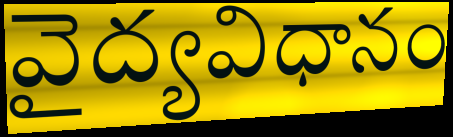
వైద్యవిధానం